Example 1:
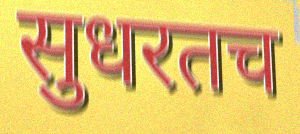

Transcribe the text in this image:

सुधरतच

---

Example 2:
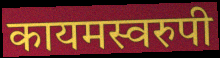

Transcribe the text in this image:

कायमस्वरुपी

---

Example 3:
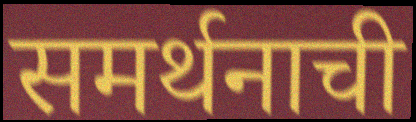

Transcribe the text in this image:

समर्थनाची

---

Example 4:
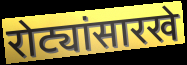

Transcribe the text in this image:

रोट्यांसारखे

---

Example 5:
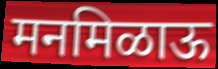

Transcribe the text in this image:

मनमिळाऊ